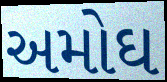
અમોઘ